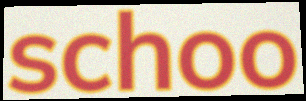
schoo